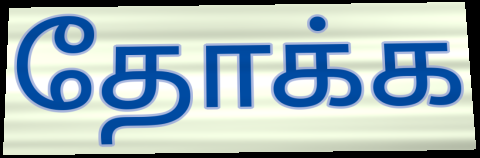
தோக்க